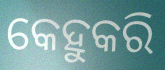
କେହୁକରି